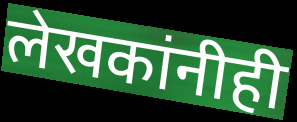
लेखकांनीही